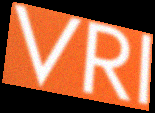
VRI